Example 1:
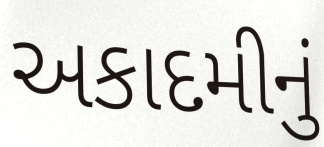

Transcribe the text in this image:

અકાદમીનું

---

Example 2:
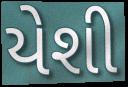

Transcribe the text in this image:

યેશી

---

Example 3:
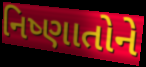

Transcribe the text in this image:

નિષ્ણાતોને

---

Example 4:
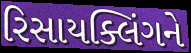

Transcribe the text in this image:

રિસાયક્લિંગને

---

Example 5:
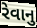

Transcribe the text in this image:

રેવાનુ